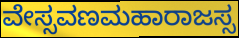
ವೇಸ್ಸವಣಮಹಾರಾಜಸ್ಸ